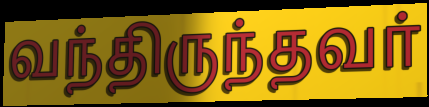
வந்திருந்தவர்